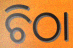
ଚିଠା